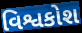
વિશ્વકોશ